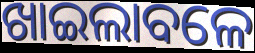
ଖାଇଲାବଳେ